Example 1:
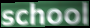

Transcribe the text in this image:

school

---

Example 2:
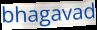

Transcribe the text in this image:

bhagavad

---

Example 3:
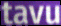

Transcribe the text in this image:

tavu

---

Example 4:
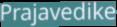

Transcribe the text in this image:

Prajavedike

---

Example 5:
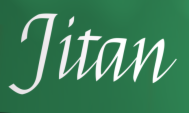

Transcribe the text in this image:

Jitan